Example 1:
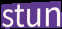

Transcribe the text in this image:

stun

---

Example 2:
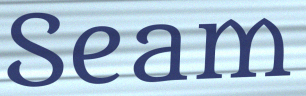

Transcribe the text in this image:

Seam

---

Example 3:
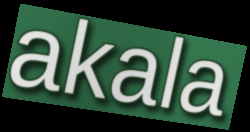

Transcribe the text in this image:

akala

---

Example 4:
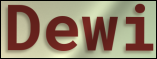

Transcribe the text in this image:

Dewi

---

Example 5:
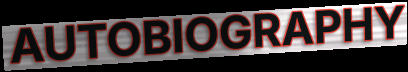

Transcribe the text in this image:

AUTOBIOGRAPHY